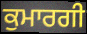
ਕੁਮਾਰਗੀ